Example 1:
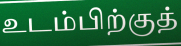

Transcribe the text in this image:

உடம்பிற்குத்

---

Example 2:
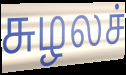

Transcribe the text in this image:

சுழலச்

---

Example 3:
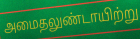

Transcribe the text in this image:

அமைதலுண்டாயிற்று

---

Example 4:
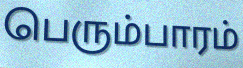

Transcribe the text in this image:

பெரும்பாரம்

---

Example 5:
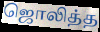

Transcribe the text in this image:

ஜொலித்த